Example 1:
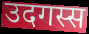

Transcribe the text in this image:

उदगस्स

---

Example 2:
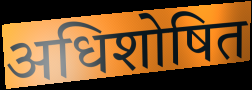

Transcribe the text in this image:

अधिशोषित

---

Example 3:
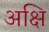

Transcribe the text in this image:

अक्षि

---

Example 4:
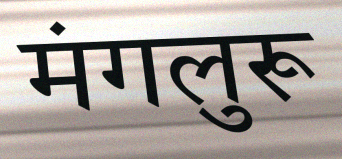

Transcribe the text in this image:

मंगलुरू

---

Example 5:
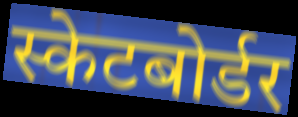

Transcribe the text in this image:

स्केटबोर्डर